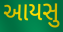
આયસુ